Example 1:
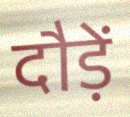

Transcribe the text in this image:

दौड़ें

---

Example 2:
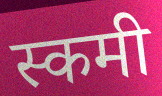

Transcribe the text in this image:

स्कमी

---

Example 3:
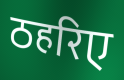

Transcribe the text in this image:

ठहरिए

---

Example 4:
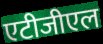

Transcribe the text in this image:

एटीजीएल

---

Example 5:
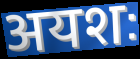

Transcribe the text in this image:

अयशः